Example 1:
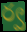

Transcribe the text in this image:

ర్వ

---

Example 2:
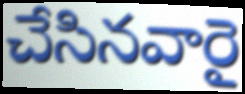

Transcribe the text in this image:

చేసినవారై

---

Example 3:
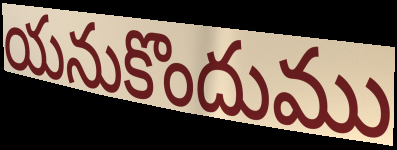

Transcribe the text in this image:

యనుకొందుము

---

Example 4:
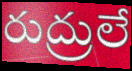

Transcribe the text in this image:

రుద్రులే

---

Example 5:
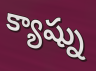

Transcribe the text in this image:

క్యాష్ను